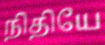
நிதியே